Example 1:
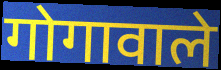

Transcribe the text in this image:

गोगावाले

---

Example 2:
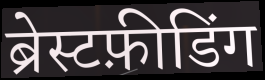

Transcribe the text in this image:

ब्रेस्टफ़ीडिंग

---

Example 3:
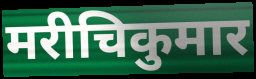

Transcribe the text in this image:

मरीचिकुमार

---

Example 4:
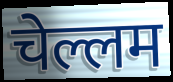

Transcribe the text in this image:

चेल्लम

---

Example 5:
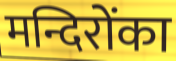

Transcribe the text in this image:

मन्दिरोंका